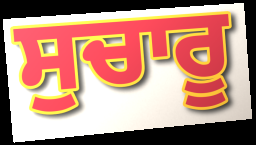
ਸੁਚਾਰੂ